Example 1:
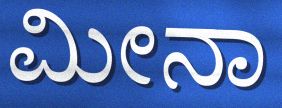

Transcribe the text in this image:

ಮೀನಾ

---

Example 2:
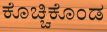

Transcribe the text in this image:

ಕೊಚ್ಚಿಕೊಂಡ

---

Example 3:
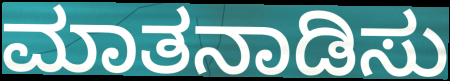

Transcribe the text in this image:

ಮಾತನಾಡಿಸು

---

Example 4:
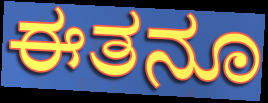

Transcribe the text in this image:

ಈತನೂ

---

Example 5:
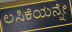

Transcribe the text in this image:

ಲಸಿಕೆಯನ್ನೇ